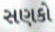
સણકો